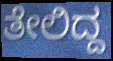
ತೇಲಿದ್ದ